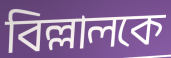
বিল্লালকে